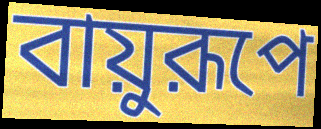
বায়ুরূপে